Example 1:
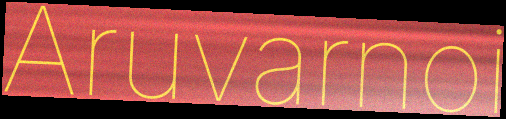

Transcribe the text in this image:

Aruvarnoi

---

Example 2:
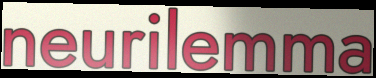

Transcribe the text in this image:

neurilemma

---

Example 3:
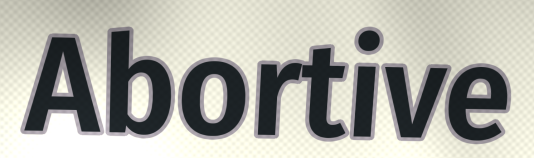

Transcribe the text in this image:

Abortive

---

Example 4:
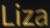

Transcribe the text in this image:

Liza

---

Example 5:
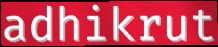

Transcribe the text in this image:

adhikrut